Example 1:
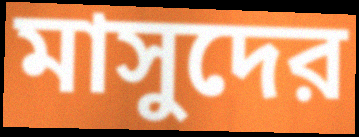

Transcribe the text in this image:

মাসুদের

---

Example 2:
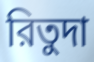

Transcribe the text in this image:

রিতুদা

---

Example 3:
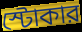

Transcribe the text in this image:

স্টোকার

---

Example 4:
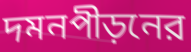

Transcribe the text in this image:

দমনপীড়নের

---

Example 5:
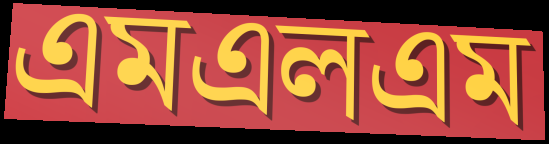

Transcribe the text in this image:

এমএলএম